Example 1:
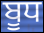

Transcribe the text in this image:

ਬੂਧ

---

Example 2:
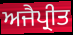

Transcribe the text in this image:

ਅਜੈਪ੍ਰੀਤ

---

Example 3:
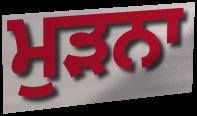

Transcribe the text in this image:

ਮੁੜਨਾ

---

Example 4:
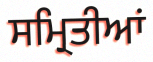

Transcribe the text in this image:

ਸਮ੍ਰਿਤੀਆਂ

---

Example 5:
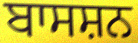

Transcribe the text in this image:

ਬਾਸਸ਼ਨ